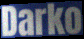
Darko